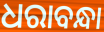
ଧରାବନ୍ଧା